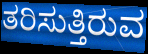
ತರಿಸುತ್ತಿರುವ